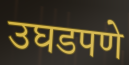
उघडपणे